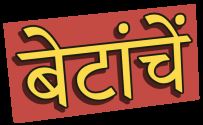
बेटांचें